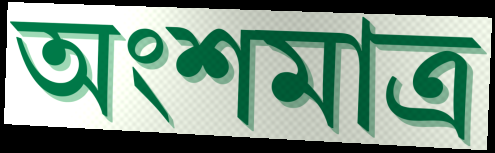
অংশমাত্র